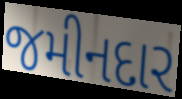
જમીનદાર